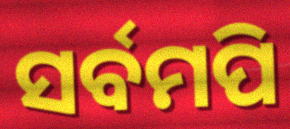
ସର୍ବମପି